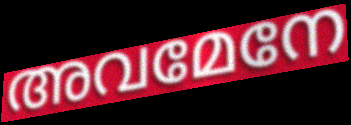
അവമേനേ